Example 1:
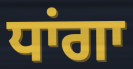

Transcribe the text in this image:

ਧਾਂਗਾ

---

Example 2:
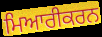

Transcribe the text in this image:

ਮਿਆਰੀਕਰਨ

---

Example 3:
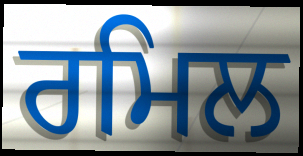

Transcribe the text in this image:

ਰਮਿਲ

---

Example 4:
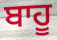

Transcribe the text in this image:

ਬਾਹੂ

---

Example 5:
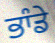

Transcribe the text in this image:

ਭਾੰਡੇ